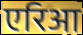
एरिआ